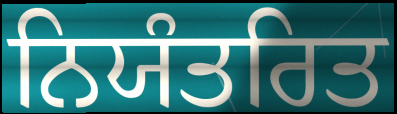
ਨਿਯੰਤਰਿਤ